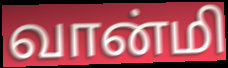
வான்மி